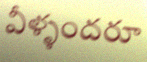
వీళ్ళందరూ